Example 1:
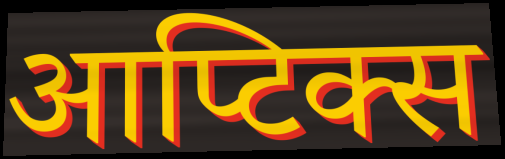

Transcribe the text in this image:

आप्टिक्स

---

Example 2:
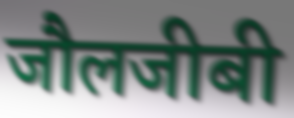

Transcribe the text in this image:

जौलजीबी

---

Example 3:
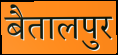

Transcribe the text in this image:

बैतालपुर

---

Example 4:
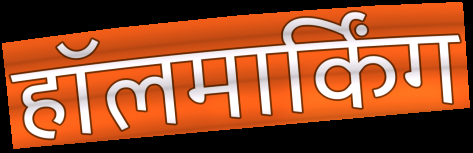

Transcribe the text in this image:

हॉलमार्किंग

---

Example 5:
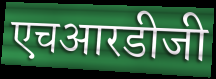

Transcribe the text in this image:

एचआरडीजी